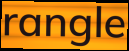
rangle